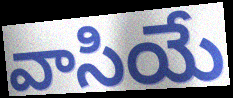
వాసియే